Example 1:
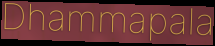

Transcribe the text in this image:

Dhammapala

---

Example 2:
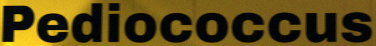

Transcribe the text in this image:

Pediococcus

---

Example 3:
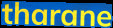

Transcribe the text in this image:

tharane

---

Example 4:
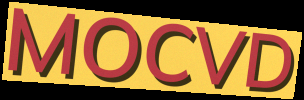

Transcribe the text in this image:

MOCVD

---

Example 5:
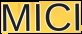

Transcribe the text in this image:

MICI